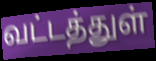
வட்டத்துள்